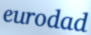
eurodad